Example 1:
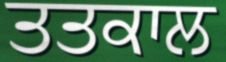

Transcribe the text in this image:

ਤਤਕਾਲ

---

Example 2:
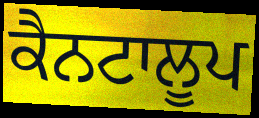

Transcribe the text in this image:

ਕੈਨਟਾਲੂਪ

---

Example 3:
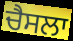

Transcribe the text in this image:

ਚੈਸਲਾ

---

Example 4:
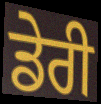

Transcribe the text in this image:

ਡੇਰੀ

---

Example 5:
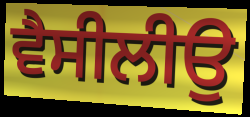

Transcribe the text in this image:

ਵੈਸੀਲੀਉ